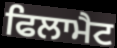
ਫਿਲਾਮੈਟ